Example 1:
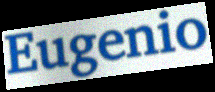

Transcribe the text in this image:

Eugenio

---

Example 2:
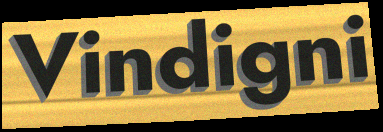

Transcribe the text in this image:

Vindigni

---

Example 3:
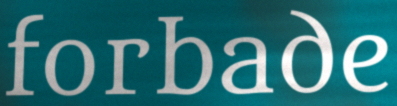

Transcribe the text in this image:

forbade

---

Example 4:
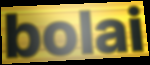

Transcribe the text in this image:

bolai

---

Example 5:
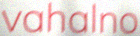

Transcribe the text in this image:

vahalno